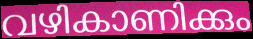
വഴികാണിക്കും